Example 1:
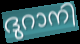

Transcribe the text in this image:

ദുറാനി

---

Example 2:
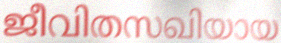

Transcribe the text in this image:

ജീവിതസഖിയായ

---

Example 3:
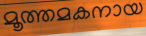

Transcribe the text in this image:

മൂത്തമകനായ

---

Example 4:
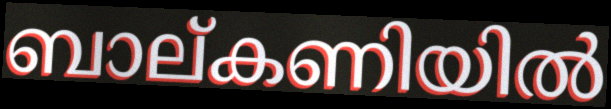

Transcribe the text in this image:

ബാല്കണിയിൽ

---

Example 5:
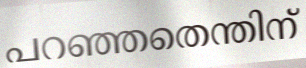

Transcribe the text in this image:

പറഞ്ഞതെന്തിന്